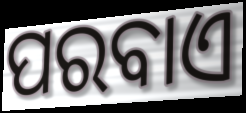
ପରବାଏ